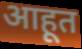
आहूत